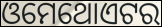
ଓମେଥୋଏଟର